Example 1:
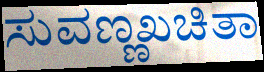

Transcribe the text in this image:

ಸುವಣ್ಣಖಚಿತಾ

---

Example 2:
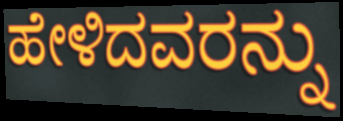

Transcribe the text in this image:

ಹೇಳಿದವರನ್ನು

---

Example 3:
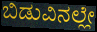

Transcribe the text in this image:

ಬಿಡುವಿನಲ್ಲೇ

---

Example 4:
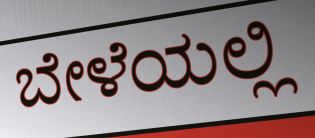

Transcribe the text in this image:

ಬೇಳೆಯಲ್ಲಿ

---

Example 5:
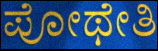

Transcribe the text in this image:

ಪೋಥೇತಿ